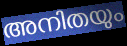
അനിതയും